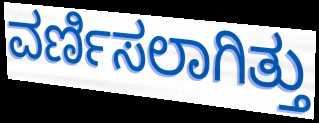
ವರ್ಣಿಸಲಾಗಿತ್ತು